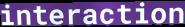
interaction